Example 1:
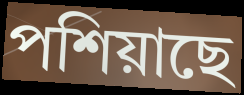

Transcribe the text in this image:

পশিয়াছে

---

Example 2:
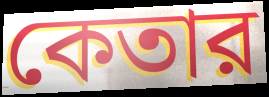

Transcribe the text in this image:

কেতার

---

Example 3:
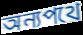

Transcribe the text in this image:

অন্যপথে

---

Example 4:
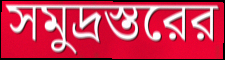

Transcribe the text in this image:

সমুদ্রস্তরের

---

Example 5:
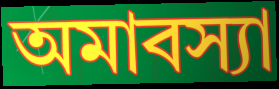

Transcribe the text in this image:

অমাবস্যা